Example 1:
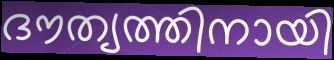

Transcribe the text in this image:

ദൗത്യത്തിനായി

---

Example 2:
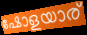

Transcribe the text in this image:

ഷോളയാര്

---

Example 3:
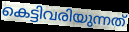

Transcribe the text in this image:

കെട്ടിവരിയുന്നത്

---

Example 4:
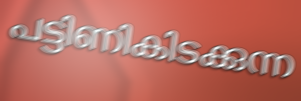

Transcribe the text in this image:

പട്ടിണികിടക്കുന്ന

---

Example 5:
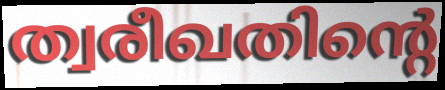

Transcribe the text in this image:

ത്വരീഖതിന്റെ